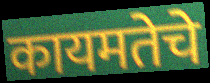
कायमतेचे